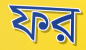
ফর